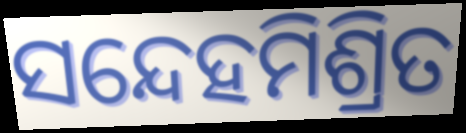
ସନ୍ଦେହମିଶ୍ରିତ